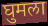
घुमला